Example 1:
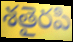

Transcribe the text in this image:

శతైరపి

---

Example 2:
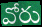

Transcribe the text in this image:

వోరు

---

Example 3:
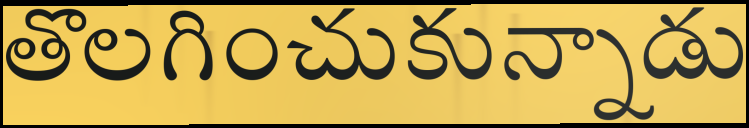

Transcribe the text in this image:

తొలగించుకున్నాడు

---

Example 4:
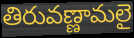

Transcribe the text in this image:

తిరువణ్ణామలై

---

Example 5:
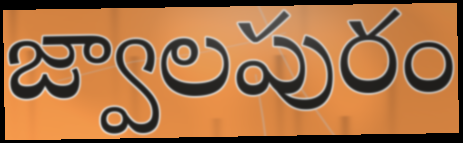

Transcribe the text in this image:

జ్వాలపురం